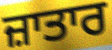
ਜ਼ਾਤਾਰ